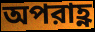
অপরাহ্ণ